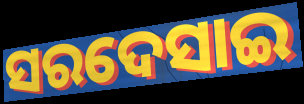
ସରଦେସାଇ